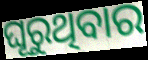
ଘୂରୁଥିବାର